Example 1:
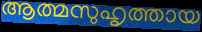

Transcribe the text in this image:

ആത്മസുഹൃത്തായ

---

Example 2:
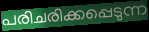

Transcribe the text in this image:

പരിചരിക്കപ്പെടുന്ന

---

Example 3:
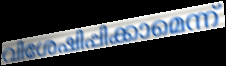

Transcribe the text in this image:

വിശേഷിപ്പിക്കാമെന്ന്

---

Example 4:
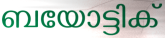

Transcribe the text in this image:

ബയോട്ടിക്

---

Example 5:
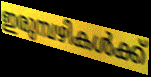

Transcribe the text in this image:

ഇരുമ്പഴികൾക്ക്